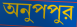
অনুপপুর